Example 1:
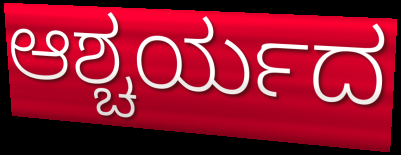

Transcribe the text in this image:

ಆಶ್ಚರ್ಯದ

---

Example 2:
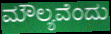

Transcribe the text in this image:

ಮೌಲ್ಯವೆಂದು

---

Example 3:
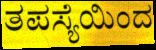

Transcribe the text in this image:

ತಪಸ್ಯೆಯಿಂದ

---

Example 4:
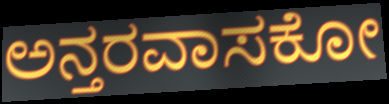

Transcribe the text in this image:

ಅನ್ತರವಾಸಕೋ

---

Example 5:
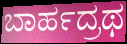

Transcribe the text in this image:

ಬಾರ್ಹದ್ರಥ